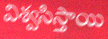
విశ్వసిస్తాయి